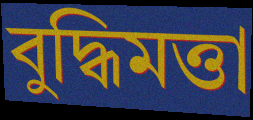
বুদ্ধিমত্তা